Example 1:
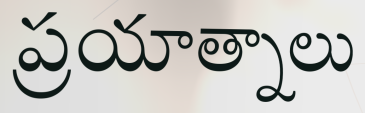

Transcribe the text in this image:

ప్రయాత్నాలు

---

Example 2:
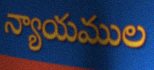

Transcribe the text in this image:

న్యాయముల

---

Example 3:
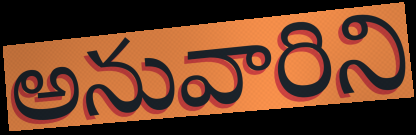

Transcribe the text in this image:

అనువారిని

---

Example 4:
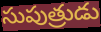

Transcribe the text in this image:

సుపుత్రుడు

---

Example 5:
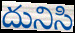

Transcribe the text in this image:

దునిసి